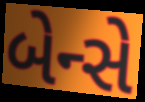
બેન્સે